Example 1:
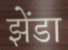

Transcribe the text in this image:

झेंडा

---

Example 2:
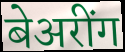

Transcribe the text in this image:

बेअरींग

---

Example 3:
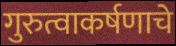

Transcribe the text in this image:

गुरुत्वाकर्षणाचे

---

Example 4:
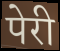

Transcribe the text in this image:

पेरी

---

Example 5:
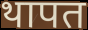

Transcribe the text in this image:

थापत